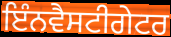
ਇੰਨਵੈਸਟੀਗੇਟਰ